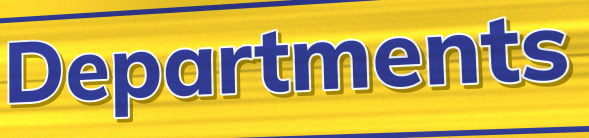
Departments